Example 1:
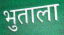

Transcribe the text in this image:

भुताला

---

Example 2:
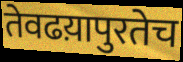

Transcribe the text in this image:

तेवढय़ापुरतेच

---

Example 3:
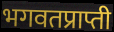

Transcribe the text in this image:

भगवतप्राप्ती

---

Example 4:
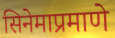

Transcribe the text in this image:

सिनेमाप्रमाणे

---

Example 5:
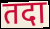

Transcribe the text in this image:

तदा